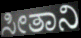
ಸೀತಾನಿ